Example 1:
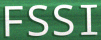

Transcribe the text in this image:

FSSI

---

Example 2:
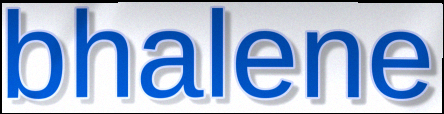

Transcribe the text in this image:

bhalene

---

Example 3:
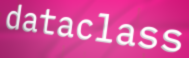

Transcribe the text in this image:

dataclass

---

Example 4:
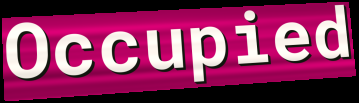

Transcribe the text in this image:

Occupied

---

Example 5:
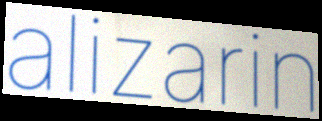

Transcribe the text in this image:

alizarin